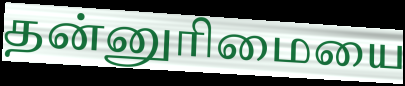
தன்னுரிமையை